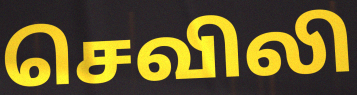
செவிலி